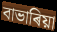
বাভাৰিয়া